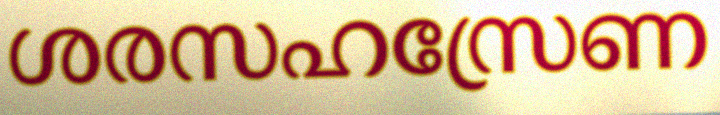
ശരസഹസ്രേണ